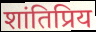
शांतिप्रिय